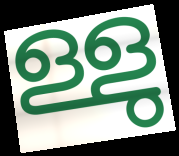
ള്ളു